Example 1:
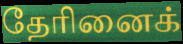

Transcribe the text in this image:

தேரினைக்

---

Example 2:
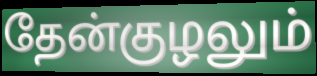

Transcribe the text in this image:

தேன்குழலும்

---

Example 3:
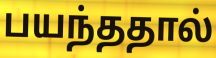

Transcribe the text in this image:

பயந்ததால்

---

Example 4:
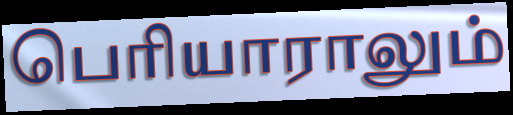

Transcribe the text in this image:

பெரியாராலும்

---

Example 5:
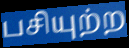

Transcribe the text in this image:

பசியுற்ற